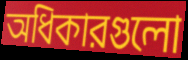
অধিকারগুলো